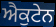
ਐਕੁਟੇਨ